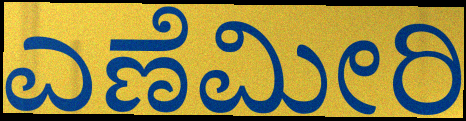
ಎಣೆಮೀರಿ